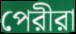
পেরীরা